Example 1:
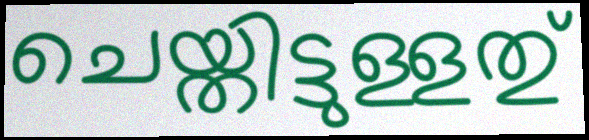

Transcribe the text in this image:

ചെയ്തിട്ടുള്ളതു്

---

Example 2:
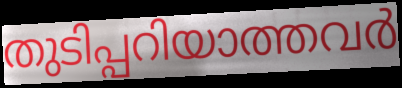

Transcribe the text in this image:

തുടിപ്പറിയാത്തവർ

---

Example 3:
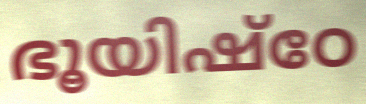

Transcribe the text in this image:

ഭൂയിഷ്ഠേ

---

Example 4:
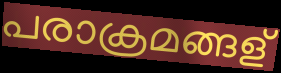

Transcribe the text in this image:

പരാക്രമങ്ങള്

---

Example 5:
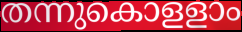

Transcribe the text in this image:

തന്നുകൊളളാം